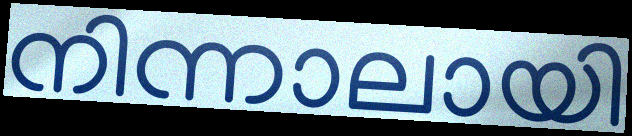
നിന്നാലായി